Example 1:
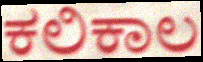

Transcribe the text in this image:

ಕಲಿಕಾಲ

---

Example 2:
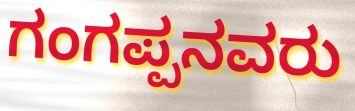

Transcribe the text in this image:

ಗಂಗಪ್ಪನವರು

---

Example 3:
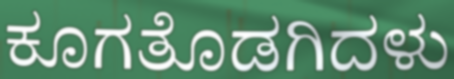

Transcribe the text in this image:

ಕೂಗತೊಡಗಿದಳು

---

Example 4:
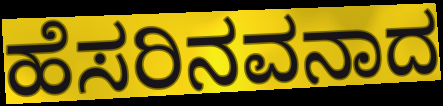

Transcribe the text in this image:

ಹೆಸರಿನವನಾದ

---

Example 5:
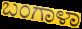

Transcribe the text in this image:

ಬಂಗಾಳಾ